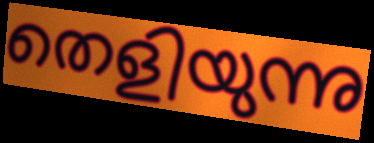
തെളിയുന്നു